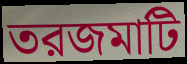
তরজমাটি